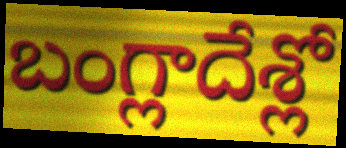
బంగ్లాదేశ్లో